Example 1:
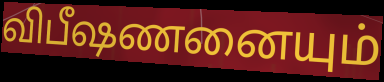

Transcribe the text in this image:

விபீஷணனையும்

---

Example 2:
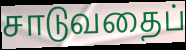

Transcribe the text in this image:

சாடுவதைப்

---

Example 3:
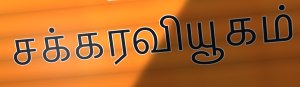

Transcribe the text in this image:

சக்கரவியூகம்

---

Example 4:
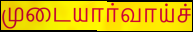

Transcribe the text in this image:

முடையார்வாய்ச்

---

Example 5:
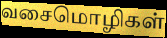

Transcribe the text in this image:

வசைமொழிகள்